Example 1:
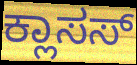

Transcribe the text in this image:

ಕ್ಲಾಸಸ್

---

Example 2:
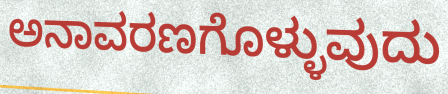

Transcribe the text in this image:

ಅನಾವರಣಗೊಳ್ಳುವುದು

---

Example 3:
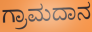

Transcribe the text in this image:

ಗ್ರಾಮದಾನ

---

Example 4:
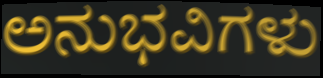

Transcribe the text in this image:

ಅನುಭವಿಗಳು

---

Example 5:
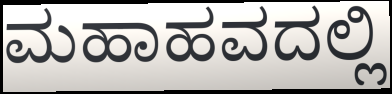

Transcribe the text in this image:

ಮಹಾಹವದಲ್ಲಿ